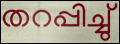
തറപ്പിച്ചു്